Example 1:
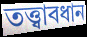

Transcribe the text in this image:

তত্ত্বাবধান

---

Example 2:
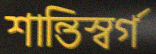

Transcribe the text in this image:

শান্তিস্বর্গ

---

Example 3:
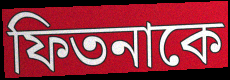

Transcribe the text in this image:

ফিতনাকে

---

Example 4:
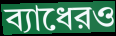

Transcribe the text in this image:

ব্যাধেরও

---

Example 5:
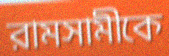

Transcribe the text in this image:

রামসামীকে